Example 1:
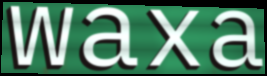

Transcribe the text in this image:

waxa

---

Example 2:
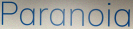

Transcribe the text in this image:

Paranoia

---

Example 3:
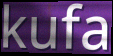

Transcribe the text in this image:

kufa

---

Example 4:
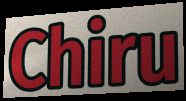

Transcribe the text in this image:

Chiru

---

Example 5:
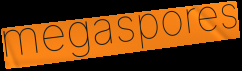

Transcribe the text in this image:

megaspores